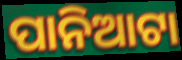
ପାନିଆଟା